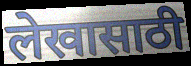
लेखासाठी